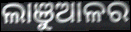
ଲାଞୁଆଳର